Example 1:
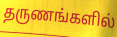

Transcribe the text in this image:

தருணங்களில்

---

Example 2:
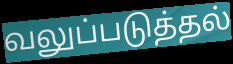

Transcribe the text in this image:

வலுப்படுத்தல்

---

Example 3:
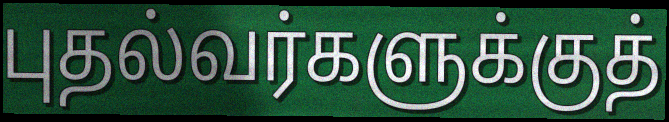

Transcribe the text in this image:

புதல்வர்களுக்குத்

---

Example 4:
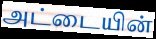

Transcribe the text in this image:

அட்டையின்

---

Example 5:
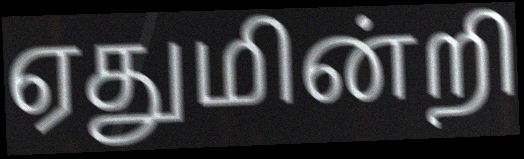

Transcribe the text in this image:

ஏதுமின்றி